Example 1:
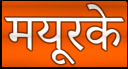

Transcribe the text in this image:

मयूरके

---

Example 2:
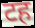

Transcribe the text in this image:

टह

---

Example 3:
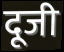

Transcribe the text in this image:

दूजी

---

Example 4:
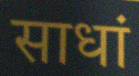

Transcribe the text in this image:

साधां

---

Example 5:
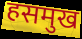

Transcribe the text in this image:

हसमुख